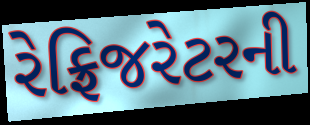
રેફ્રિજરેટરની